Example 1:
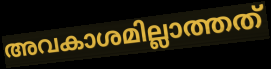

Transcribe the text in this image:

അവകാശമില്ലാത്തത്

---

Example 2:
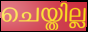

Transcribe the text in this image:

ചെയ്തില്ല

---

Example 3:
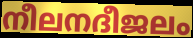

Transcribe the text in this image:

നീലനദീജലം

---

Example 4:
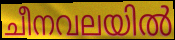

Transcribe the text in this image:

ചീനവലയിൽ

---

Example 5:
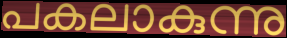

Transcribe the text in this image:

പകലാകുന്നു